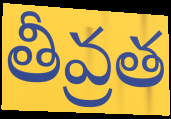
తీవ్రత